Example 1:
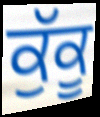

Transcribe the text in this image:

ਕੁੱਕੂ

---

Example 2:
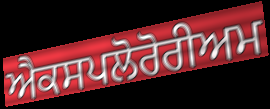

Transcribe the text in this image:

ਐਕਸਪਲੋਰੋਰੀਅਮ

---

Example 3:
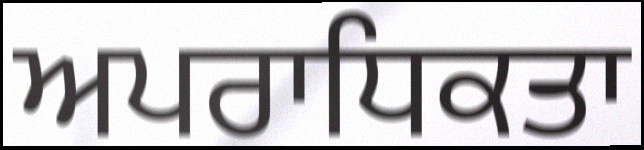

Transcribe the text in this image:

ਅਪਰਾਧਿਕਤਾ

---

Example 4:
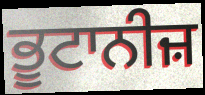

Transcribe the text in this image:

ਭੂਟਾਨੀਜ਼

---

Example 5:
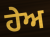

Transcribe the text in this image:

ਹੇਅ